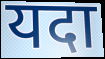
यदा